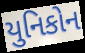
યુનિકોન